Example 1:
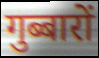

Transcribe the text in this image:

गुब्बारों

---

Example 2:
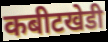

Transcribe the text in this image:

कबीटखेडी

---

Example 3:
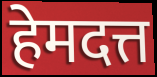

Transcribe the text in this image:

हेमदत्त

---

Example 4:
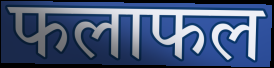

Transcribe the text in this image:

फलाफल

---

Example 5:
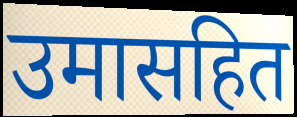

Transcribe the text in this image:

उमासहित